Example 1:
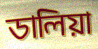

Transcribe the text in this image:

ডালিয়া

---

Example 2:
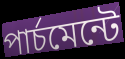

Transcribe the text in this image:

পার্চমেন্টে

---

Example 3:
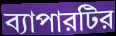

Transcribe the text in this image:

ব্যাপারটির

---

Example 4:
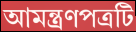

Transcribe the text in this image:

আমন্ত্রণপত্রটি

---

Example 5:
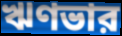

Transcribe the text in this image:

ঋণভার